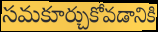
సమకూర్చుకోవడానికి